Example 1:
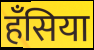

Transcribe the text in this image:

हँसिया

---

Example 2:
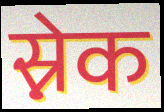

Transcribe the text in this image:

स्नेक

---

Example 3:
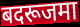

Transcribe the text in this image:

बदरूजमा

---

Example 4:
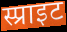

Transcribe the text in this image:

स्प्राइट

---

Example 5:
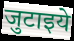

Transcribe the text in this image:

जुटाइये